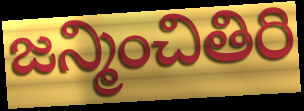
జన్మించితిరి